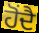
ਹੋਂਦੈ